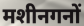
मशीनगनों